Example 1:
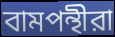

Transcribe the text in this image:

বামপন্থীরা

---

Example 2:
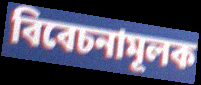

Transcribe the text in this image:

বিবেচনামূলক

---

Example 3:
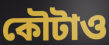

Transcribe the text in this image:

কৌটাও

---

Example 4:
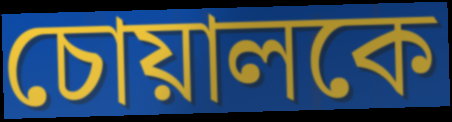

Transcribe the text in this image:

চোয়ালকে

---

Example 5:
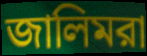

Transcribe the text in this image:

জালিমরা